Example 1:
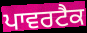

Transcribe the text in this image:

ਪਾਵਰਟੈਕ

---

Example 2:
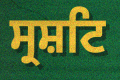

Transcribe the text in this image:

ਸ੍ਰਸ਼ਟਿ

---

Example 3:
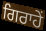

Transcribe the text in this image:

ਗਿਰਾਹੇਂ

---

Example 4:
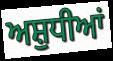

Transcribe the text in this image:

ਅਸ਼ੁਧੀਆਂ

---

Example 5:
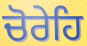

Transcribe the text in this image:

ਚੋਰੇਹਿ